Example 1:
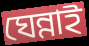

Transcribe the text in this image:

ঘেন্নাই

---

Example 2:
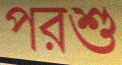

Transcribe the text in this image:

পরশু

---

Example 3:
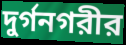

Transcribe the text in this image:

দুর্গনগরীর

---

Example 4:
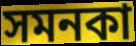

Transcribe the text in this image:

সমনকা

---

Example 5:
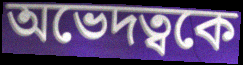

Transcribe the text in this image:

অভেদত্বকে